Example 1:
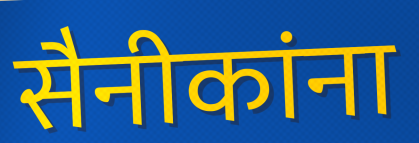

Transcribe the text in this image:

सैनीकांना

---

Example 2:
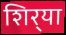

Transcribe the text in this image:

शिर्‍या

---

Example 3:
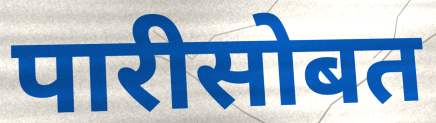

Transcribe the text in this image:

पारीसोबत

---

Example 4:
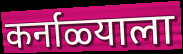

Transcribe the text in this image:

कर्नाळ्याला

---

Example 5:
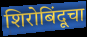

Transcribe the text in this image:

शिरोबिंदूचा